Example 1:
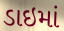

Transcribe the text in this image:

ડાઇમાં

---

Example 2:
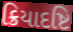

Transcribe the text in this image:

ક્રિયાદષ્ટિ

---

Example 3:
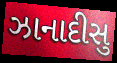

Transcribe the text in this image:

ઝાનાદીસુ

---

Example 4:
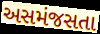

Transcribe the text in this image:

અસમંજસતા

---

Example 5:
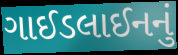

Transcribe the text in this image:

ગાઈડલાઈનનું